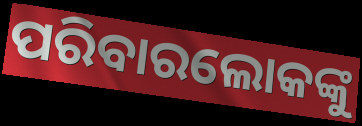
ପରିବାରଲୋକଙ୍କୁ